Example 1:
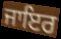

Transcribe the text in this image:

ਜਾਇਰ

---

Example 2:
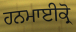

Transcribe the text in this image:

ਹਨਮਾਈਕ੍ਰੋ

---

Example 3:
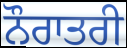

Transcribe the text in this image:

ਨੌਰਾਤਰੀ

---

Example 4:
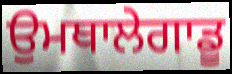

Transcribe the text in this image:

ਉਮਥਾਲੇਗਾਡੂ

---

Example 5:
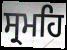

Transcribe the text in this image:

ਸ੍ਰਮਹਿ